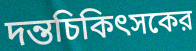
দন্তচিকিৎসকের